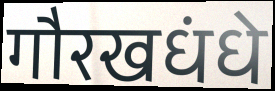
गौरखधंधे